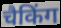
चैकिंग